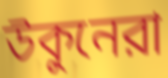
উকুনেরা